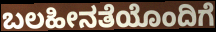
ಬಲಹೀನತೆಯೊಂದಿಗೆ